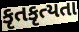
કૃતકૃત્યતા